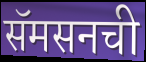
सॅमसनची